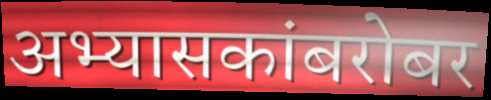
अभ्यासकांबरोबर